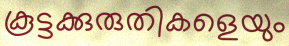
കൂട്ടക്കുരുതികളെയും